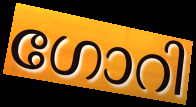
ഗോറി